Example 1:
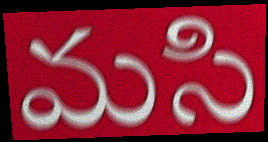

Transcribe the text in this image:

మసి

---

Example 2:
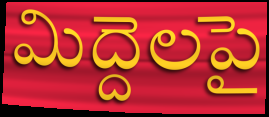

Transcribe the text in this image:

మిద్దెలపై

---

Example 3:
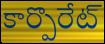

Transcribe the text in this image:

కార్పొరేట్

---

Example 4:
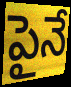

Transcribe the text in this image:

పైనే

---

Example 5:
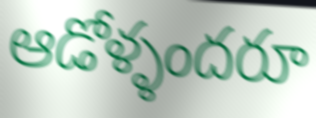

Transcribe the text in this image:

ఆడోళ్ళందరూ